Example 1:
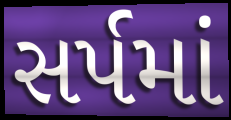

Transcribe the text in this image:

સર્પમાં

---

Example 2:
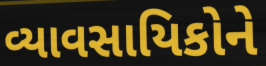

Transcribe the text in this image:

વ્યાવસાયિકોને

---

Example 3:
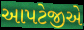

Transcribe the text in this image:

આપટેજીએ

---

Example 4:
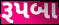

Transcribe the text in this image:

રૂપબા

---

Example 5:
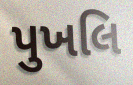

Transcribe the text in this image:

પુખલિ